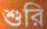
শুরি